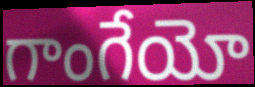
గాంగేయో